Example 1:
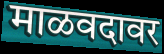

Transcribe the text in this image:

माळवदावर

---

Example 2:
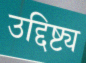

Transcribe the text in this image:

उद्दिष्ट्य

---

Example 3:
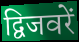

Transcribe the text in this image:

द्विजवरें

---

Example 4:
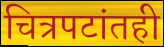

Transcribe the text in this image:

चित्रपटांतही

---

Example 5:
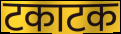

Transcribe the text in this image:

टकाटक